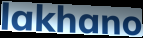
lakhano